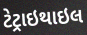
ટેટ્રાઇથાઇલ